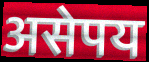
असेपय